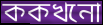
ককখনো